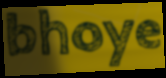
bhoye